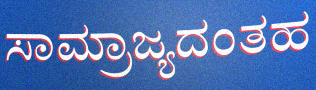
ಸಾಮ್ರಾಜ್ಯದಂತಹ